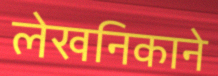
लेखनिकाने